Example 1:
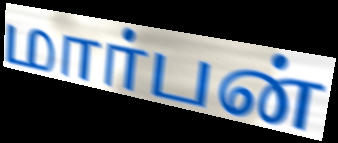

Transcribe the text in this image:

மார்பன்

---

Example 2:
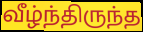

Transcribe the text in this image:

வீழ்ந்திருந்த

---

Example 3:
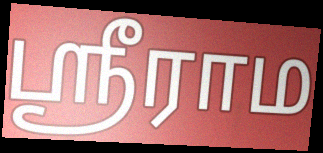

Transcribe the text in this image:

ஸ்ரீராம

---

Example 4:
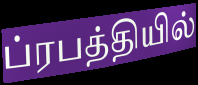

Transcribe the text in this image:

ப்ரபத்தியில்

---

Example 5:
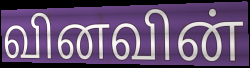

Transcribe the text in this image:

வினவின்